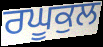
ਰਘੂਕੁਲ